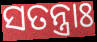
ସତନ୍ତ୍ରାଃ